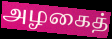
அழகைத்